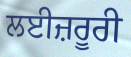
ਲਈਜ਼ਰੂਰੀ